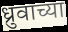
ध्रुवाच्या